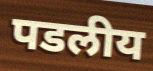
पडलीय